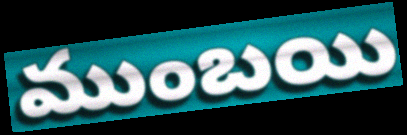
ముంబయి